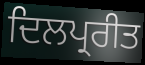
ਦਿਲਪ੍ਰਰੀਤ